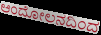
ಆಂದೋಲನದಿಂದ